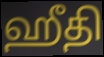
ஹீதி